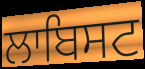
ਲਾਬਿਸਟ